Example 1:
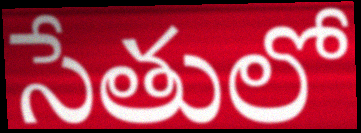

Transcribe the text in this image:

సేతులో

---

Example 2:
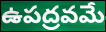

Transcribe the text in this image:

ఉపద్రవమే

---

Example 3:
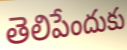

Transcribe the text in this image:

తెలిపేందుకు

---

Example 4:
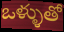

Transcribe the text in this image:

ఒళ్ళుతో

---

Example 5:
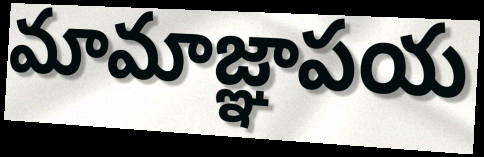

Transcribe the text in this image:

మామాజ్ఞాపయ